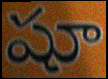
షూ